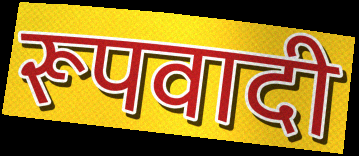
रूपवादी